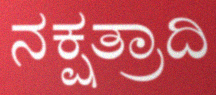
ನಕ್ಷತ್ರಾದಿ